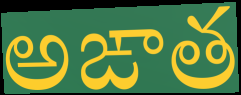
అఙాత